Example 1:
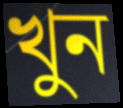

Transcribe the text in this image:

খুন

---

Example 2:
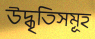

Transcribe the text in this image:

উদ্ধৃতিসমূহ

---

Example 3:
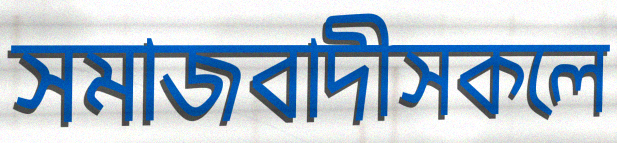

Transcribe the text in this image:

সমাজবাদীসকলে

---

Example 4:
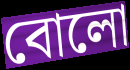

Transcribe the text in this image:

বোলো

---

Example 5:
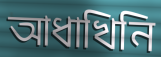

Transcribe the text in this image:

আধাখিনি